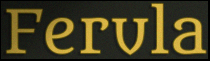
Ferula